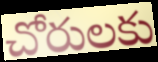
చోరులకు